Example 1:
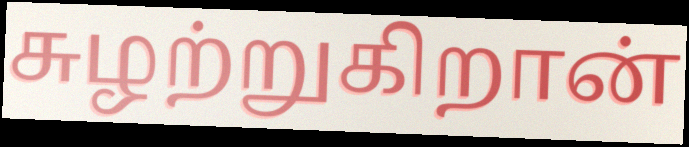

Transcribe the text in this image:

சுழற்றுகிறான்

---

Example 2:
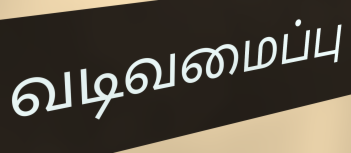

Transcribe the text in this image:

வடிவமைப்பு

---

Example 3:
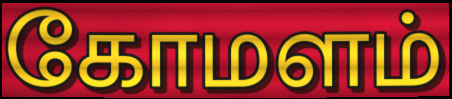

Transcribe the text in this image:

கோமளம்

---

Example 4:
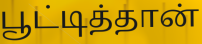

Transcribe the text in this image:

பூட்டித்தான்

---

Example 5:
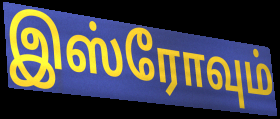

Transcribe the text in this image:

இஸ்ரோவும்